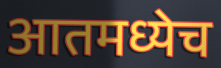
आतमध्येच